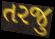
તરજુ